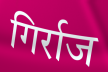
गिर्राज